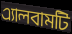
এ্যালবামটি